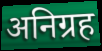
अनिग्रह